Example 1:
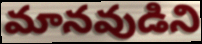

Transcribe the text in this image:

మానవుడిని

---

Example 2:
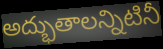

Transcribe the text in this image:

అద్భుతాలన్నిటినీ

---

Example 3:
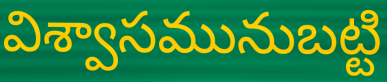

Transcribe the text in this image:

విశ్వాసమునుబట్టి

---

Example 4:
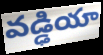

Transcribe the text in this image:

వడ్ఢియా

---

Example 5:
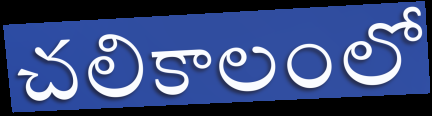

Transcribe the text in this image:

చలికాలంలో